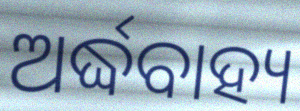
ଅର୍ଦ୍ଧବାହ୍ୟ